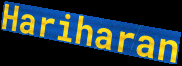
Hariharan